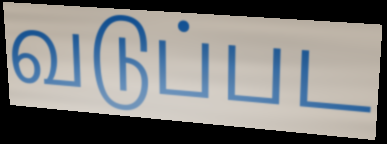
வடுப்பட